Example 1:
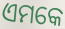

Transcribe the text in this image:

ଏମକେ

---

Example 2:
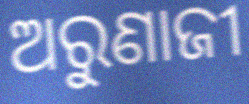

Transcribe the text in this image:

ଅରୁଣାଜୀ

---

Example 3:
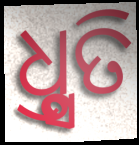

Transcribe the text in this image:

ଧ୍ତ୍ସତି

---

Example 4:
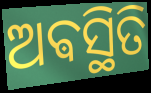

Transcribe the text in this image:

ଅଵସ୍ଥିତି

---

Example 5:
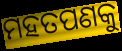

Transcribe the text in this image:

ମହତପଣକୁ